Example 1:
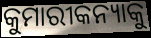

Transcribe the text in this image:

କୁମାରୀକନ୍ୟାକୁ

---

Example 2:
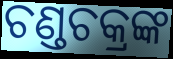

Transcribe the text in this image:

ଚଣ୍ଡଚକ୍ରଙ୍କ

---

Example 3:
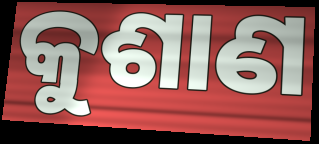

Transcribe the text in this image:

କୁଶାଣ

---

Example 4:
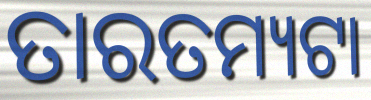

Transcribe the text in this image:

ତାରତମ୍ୟଟା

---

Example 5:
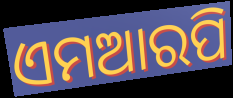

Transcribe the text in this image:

ଏମଆରପି